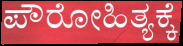
ಪೌರೋಹಿತ್ಯಕ್ಕೆ